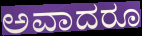
ಅವಾದರೂ